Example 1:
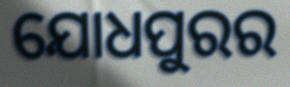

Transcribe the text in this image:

ଯୋଧପୁରର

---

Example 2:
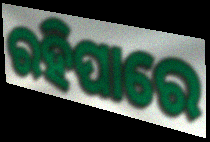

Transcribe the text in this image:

ରହିପାରେ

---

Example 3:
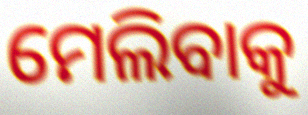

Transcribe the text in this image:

ମେଲିବାକୁ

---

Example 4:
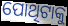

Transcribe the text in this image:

ପୋଥିଟାକୁ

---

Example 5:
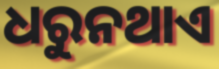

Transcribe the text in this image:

ଧରୁନଥାଏ